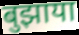
बुझाया